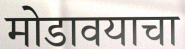
मोडावयाचा